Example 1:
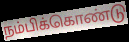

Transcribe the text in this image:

நம்பிக்கொண்டு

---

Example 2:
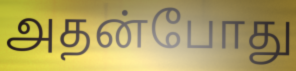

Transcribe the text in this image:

அதன்போது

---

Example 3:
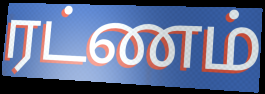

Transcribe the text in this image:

ரட்ணம்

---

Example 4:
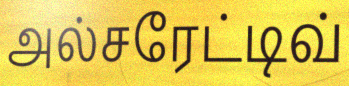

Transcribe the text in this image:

அல்சரேட்டிவ்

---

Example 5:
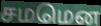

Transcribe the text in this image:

சமமென